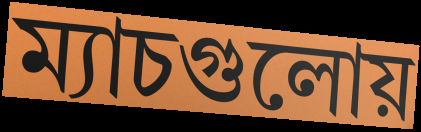
ম্যাচগুলোয়